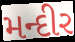
મન્દીર